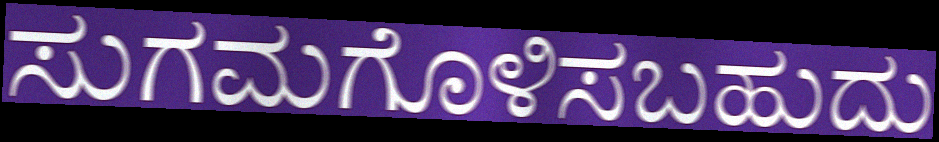
ಸುಗಮಗೊಳಿಸಬಹುದು